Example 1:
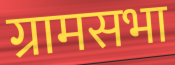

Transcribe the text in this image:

ग्रामसभा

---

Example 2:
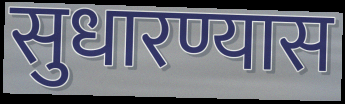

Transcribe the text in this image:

सुधारण्यास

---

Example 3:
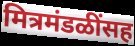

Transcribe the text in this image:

मित्रमंडळींसह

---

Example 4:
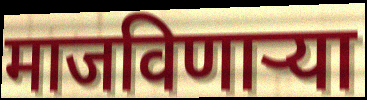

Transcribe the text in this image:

माजविणाऱ्या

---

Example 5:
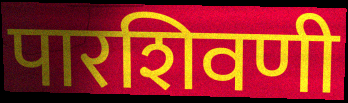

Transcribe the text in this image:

पारशिवणी